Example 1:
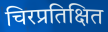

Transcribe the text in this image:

चिरप्रतिक्षित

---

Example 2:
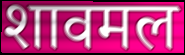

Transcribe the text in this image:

शावमल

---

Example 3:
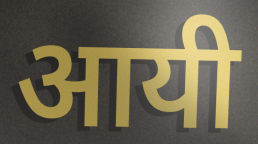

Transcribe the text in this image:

आयी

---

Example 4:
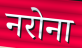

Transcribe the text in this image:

नरोना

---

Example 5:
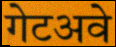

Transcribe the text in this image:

गेटअवे